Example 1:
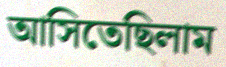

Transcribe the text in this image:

আসিতেছিলাম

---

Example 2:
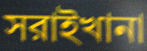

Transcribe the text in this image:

সরাইখানা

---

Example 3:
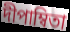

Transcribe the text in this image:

দীপাম্বিতা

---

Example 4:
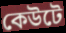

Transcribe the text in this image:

কেউটে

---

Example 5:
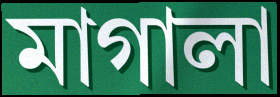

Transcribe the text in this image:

মাগালা